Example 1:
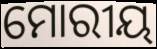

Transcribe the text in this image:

ମୋରୀୟ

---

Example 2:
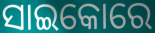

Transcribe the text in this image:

ସାଇକୋରେ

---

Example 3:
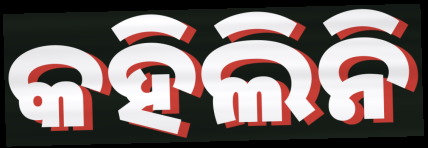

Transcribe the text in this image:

କହିଲିନି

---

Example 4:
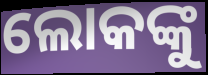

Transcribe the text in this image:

ଲୋକଙ୍କୁ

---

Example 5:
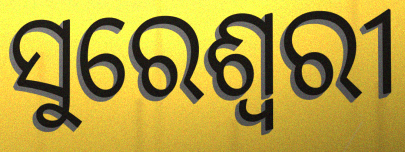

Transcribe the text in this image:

ସୁରେଶ୍ଵରୀ